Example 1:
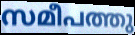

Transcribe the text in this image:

സമീപത്തു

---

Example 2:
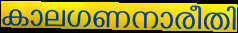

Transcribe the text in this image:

കാലഗണനാരീതി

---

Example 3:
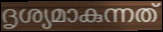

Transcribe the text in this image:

ദൃശ്യമാകുന്നത്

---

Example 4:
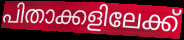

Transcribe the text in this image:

പിതാക്കളിലേക്ക്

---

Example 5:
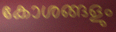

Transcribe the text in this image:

കോശങ്ങളും